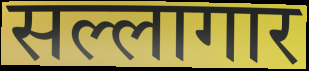
सल्‍लागार